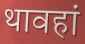
थावहां